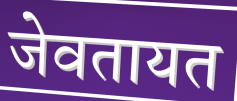
जेवतायत